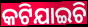
କଟିଯାଇଚି